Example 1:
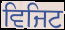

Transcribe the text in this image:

ਵਿਜਿਟ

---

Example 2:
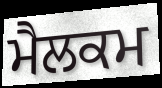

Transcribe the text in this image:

ਮੈਲਕਮ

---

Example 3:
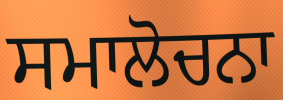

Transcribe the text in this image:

ਸਮਾਲੋਚਨਾ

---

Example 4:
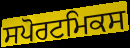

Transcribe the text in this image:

ਸਪੋਰਟਮਿਕਸ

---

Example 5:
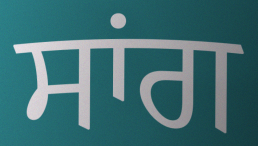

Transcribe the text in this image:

ਸਾਂਗ